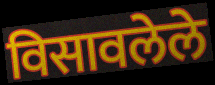
विसावलेले